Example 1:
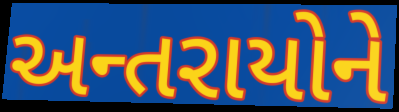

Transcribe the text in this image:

અન્તરાયોને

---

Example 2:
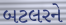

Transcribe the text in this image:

બટલરને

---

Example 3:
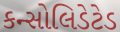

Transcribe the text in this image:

કન્સોલિડેટેડ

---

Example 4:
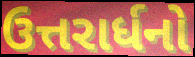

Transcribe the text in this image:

ઉત્તરાર્ધનો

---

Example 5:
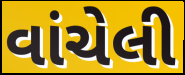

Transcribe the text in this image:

વાંચેલી